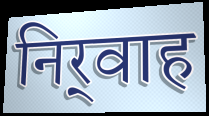
निर्वाह